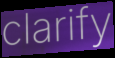
clarify